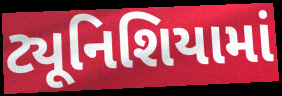
ટ્યૂનિશિયામાં